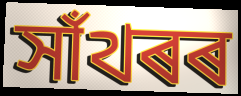
সাঁথৰৰ